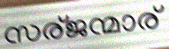
സര്ജന്മാര്